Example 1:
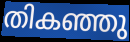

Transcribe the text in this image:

തികഞ്ഞു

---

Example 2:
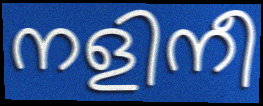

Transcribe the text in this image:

നളിനീ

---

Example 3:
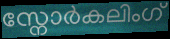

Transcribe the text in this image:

സ്നോർകലിംഗ്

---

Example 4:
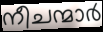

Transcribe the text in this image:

നീചന്മാർ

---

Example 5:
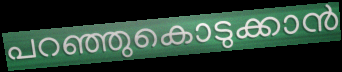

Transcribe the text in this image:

പറഞ്ഞുകൊടുക്കാൻ